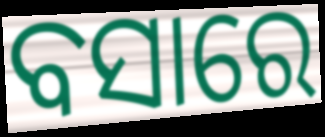
ବସାରେ